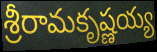
శ్రీరామకృష్ణయ్య